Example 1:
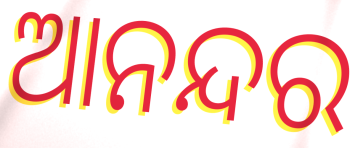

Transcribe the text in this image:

ଆନନ୍ଦର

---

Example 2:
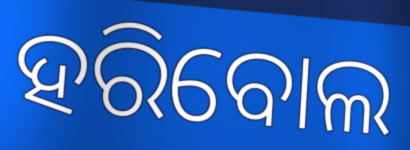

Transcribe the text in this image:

ହରିବୋଲ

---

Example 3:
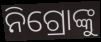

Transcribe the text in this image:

ନିଗ୍ରୋଙ୍କୁ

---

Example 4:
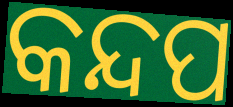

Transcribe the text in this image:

କନ୍ଦପ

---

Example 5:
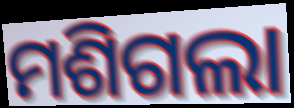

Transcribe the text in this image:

ମଶିଗଲା